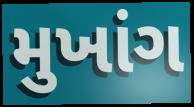
મુખાંગ